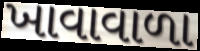
ખાવાવાળા